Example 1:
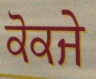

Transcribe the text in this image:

ਕੋਕਜੇ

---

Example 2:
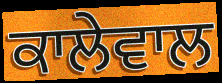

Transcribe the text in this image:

ਕਾਲੇਵਾਲ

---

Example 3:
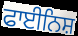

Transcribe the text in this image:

ਫਾਈਨਿਸ਼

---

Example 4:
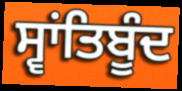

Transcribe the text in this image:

ਸ੍ਵਾਂਤਿਬੂੰਦ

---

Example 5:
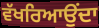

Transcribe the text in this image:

ਵੱਖਰਿਆਉਂਦਾ